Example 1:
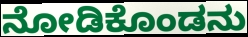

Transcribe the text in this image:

ನೋಡಿಕೊಂಡನು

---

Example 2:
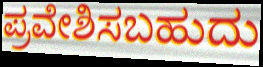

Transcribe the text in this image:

ಪ್ರವೇಶಿಸಬಹುದು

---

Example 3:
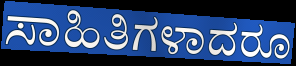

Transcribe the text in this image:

ಸಾಹಿತಿಗಳಾದರೂ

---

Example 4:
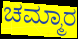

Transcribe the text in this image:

ಚಮ್ಮಾರ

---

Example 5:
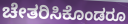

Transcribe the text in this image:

ಚೇತರಿಸಿಕೊಂಡರೂ